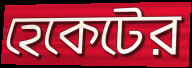
হেকেটের